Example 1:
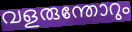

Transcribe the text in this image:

വളരുന്തോറും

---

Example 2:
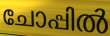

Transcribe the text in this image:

ചോപ്പിൽ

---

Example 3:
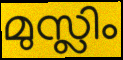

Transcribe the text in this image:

മുസ്ലിം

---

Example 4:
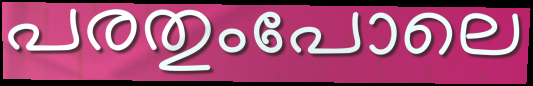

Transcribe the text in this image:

പരതുംപോലെ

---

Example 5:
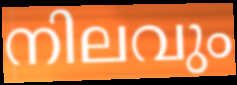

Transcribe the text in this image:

നിലവും